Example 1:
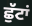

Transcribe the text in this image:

ਛੁੱਟਾਂ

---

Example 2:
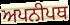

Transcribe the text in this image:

ਅਪਨੀਪਥ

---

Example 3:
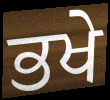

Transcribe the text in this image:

ਭਖੇ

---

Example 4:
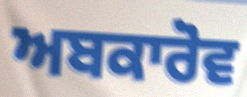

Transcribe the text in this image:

ਅਬਕਾਰੋਵ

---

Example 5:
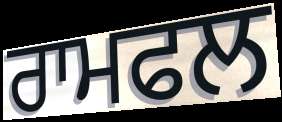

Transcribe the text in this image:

ਰਾਮਫਲ